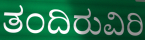
ತಂದಿರುವಿರಿ